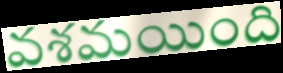
వశమయింది